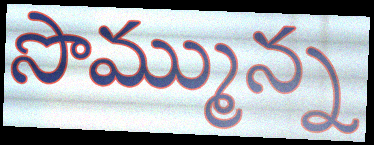
సొమ్మున్న